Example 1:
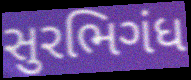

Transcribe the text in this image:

સુરભિગંધ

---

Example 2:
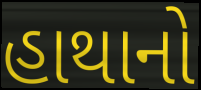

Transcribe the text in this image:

હાથાનો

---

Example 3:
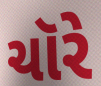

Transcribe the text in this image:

ચૉરે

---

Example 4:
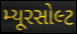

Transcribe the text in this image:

મ્યૂરસોલ્ટ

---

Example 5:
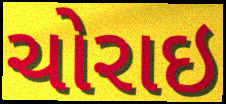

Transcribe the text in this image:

ચોરાઇ